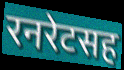
रनरेटसह